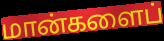
மான்களைப்